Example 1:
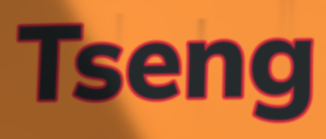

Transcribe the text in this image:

Tseng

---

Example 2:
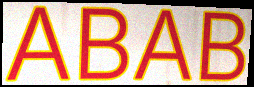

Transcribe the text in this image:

ABAB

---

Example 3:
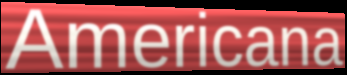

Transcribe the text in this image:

Americana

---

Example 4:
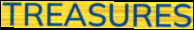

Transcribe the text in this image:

TREASURES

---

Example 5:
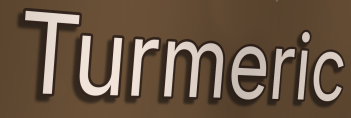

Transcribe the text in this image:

Turmeric